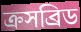
ক্রসব্রিড